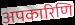
अपकारिणि